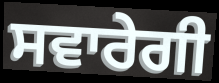
ਸਵਾਰੇਗੀ